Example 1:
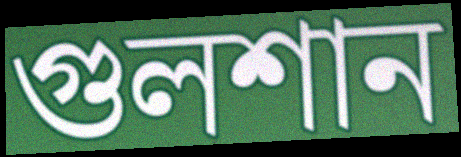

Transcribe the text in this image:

গুলশান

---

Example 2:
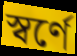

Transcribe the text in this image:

স্বর্ণে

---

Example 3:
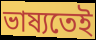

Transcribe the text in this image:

ভাষ্যতেই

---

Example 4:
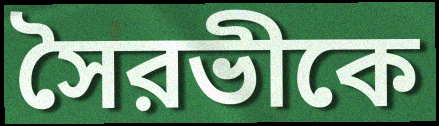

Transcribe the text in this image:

সৈরভীকে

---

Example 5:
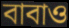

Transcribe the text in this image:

বাবাও